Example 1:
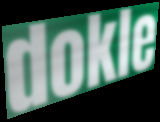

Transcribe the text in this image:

dokle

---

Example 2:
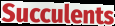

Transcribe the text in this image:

Succulents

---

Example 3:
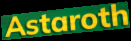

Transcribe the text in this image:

Astaroth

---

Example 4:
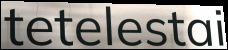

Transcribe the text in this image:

tetelestai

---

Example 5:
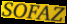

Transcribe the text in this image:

SOFAZ